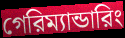
গেরিম্যান্ডারিং